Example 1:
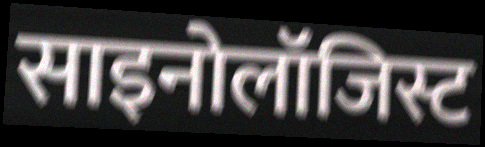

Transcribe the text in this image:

साइनोलॉजिस्ट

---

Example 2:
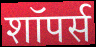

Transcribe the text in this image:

शॉपर्स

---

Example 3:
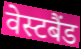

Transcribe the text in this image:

वेस्टबैंड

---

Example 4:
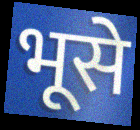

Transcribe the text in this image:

भूसे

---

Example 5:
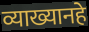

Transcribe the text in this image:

व्याख्यानहे